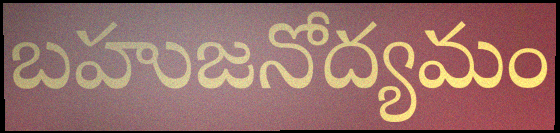
బహుజనోద్యమం